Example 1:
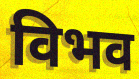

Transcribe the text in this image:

विभव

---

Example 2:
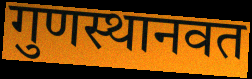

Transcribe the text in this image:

गुणस्थानवत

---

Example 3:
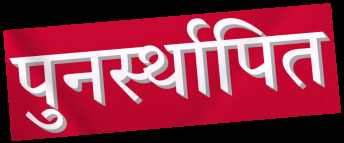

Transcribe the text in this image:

पुनर्स्थापित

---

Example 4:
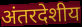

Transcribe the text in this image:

अंतरदेशीय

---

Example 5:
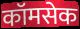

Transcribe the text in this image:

कॉमसेक